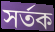
সর্তক